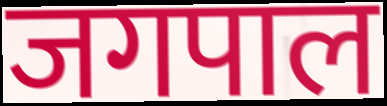
जगपाल